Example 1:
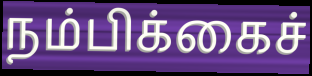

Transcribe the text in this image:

நம்பிக்கைச்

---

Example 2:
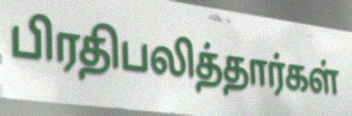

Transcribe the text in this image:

பிரதிபலித்தார்கள்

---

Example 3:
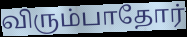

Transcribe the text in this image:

விரும்பாதோர்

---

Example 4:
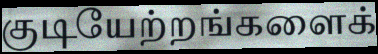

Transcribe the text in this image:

குடியேற்றங்களைக்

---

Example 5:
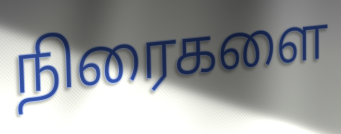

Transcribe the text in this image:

நிரைகளை